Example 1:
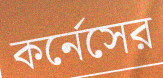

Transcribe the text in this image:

কর্নেসের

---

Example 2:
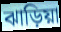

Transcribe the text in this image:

ঝাড়িয়া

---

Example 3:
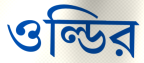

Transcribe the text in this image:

ওল্ডির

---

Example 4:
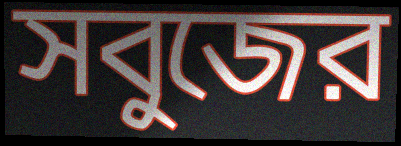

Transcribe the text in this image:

সবুজের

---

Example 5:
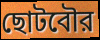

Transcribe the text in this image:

ছোটবৌর